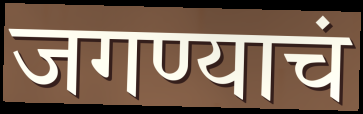
जगण्याचं